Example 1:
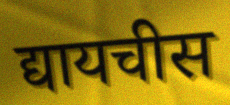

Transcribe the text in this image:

द्यायचीस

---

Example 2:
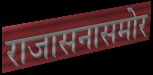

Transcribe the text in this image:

राजासनासमोर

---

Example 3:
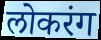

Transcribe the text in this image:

लोकरंग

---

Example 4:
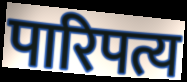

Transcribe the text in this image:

पारिपत्य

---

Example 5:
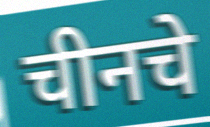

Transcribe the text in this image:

चीनचे